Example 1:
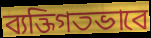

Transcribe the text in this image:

ব্যক্তিগতভাবে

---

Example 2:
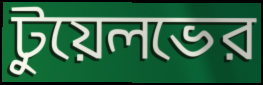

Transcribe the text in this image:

টুয়েলভের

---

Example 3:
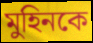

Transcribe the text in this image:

মুহিনকে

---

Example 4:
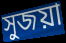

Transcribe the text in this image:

সুজয়া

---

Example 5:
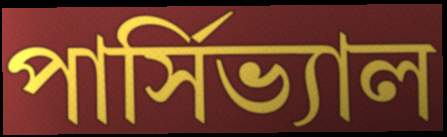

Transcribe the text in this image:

পার্সিভ্যাল